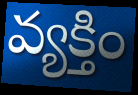
వ్యక్తిం